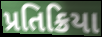
પ્રતિક્રિયા